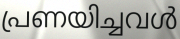
പ്രണയിച്ചവൾ